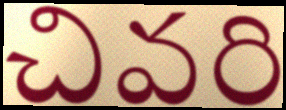
చివరి